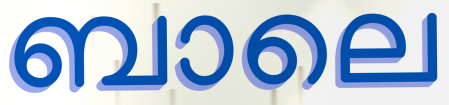
ബാലെ